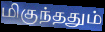
மிகுந்ததும்